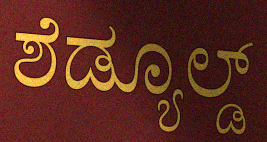
ಶೆಡ್ಯೂಲ್ಡ್